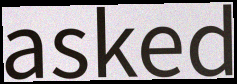
asked